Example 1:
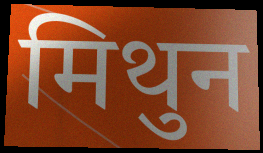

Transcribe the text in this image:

मिथुन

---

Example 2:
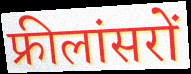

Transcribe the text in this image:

फ्रीलांसरों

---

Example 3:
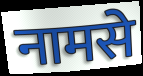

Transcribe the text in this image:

नामसे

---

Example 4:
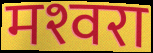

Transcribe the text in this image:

मश्वरा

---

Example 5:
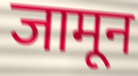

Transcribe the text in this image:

जामून